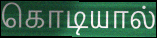
கொடியால்